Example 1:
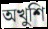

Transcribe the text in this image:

অখুশি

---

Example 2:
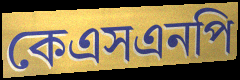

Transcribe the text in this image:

কেএসএনপি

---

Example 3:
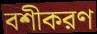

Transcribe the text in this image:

বশীকরণ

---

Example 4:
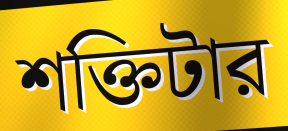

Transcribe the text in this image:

শক্তিটার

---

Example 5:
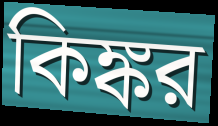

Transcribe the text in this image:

কিঙ্কর